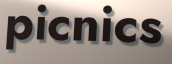
picnics